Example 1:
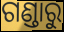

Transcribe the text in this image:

ଗଣ୍ଡାରୁ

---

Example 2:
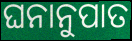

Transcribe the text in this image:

ଘନାନୁପାତ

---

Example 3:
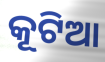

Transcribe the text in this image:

କୂଟିଆ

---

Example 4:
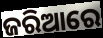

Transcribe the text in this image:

ଜରିଆରେ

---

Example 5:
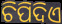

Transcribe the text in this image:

ଚିପିଦିଏ